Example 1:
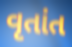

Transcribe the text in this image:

વૃતાંત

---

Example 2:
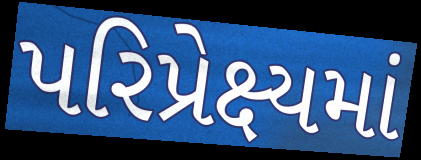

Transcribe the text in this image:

પરિપ્રેક્ષ્યમાં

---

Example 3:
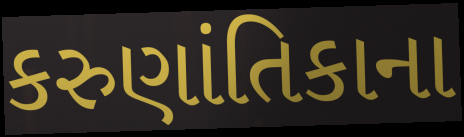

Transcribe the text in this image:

કરુણાંતિકાના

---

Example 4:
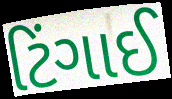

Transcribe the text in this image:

ટિંગાઈ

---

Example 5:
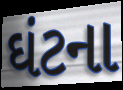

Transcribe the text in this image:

ઘંટના